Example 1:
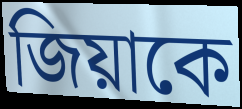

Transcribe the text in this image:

জিয়াকে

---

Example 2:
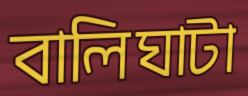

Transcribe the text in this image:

বালিঘাটা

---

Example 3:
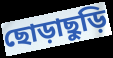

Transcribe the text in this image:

ছোড়াছুড়ি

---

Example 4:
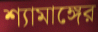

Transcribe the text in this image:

শ্যামাঙ্গের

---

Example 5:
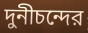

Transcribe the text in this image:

দুনীচন্দের